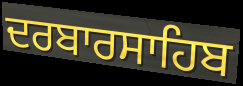
ਦਰਬਾਰਸਾਹਿਬ